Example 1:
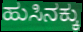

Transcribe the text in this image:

ಹುಸಿನಕ್ಕು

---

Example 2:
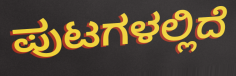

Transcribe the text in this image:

ಪುಟಗಳಲ್ಲಿದೆ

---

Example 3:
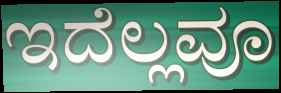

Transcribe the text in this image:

ಇದೆಲ್ಲವೂ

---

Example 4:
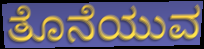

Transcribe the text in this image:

ತೊನೆಯುವ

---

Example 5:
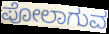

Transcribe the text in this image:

ಪೋಲಾಗುವ